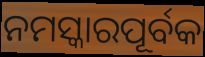
ନମସ୍କାରପୂର୍ବକ